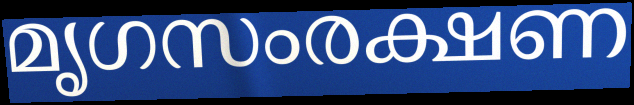
മൃഗസംരക്ഷണ